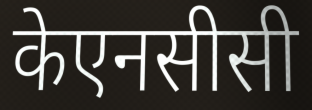
केएनसीसी